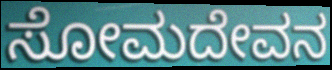
ಸೋಮದೇವನ